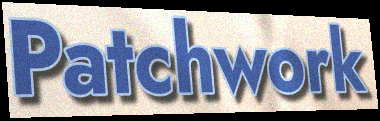
Patchwork